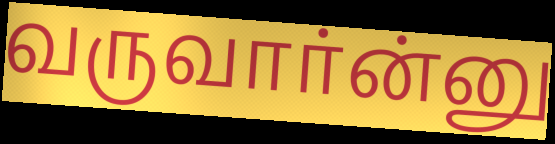
வருவார்ன்னு